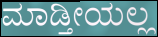
ಮಾಡ್ತೀಯಲ್ಲ